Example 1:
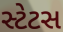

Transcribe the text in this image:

સ્ટેટસ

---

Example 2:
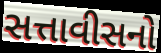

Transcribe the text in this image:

સત્તાવીસનો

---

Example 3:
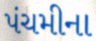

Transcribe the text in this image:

પંચમીના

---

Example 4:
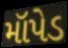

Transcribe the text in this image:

મૉપેડ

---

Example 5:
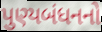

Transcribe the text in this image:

પુણ્યબંધનનો